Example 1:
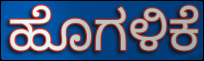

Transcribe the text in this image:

ಹೊಗಳಿಕೆ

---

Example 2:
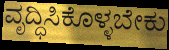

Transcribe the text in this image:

ವೃದ್ಧಿಸಿಕೊಳ್ಳಬೇಕು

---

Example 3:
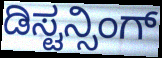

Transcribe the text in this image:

ಡಿಸ್ಟನ್ಸಿಂಗ್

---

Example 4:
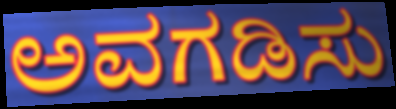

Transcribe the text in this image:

ಅವಗಡಿಸು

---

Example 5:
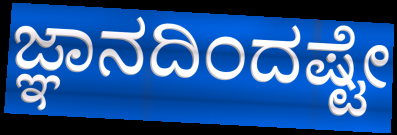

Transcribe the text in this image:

ಜ್ಞಾನದಿಂದಷ್ಟೇ